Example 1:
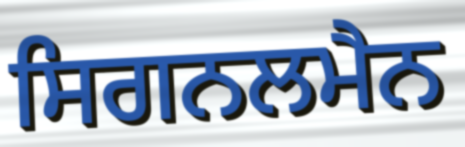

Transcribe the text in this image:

ਸਿਗਨਲਮੈਨ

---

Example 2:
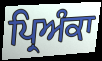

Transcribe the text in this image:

ਪ੍ਰਿਅੰਕਾ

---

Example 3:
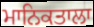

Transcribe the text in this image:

ਮਾਨਿਕਤਾਲਾ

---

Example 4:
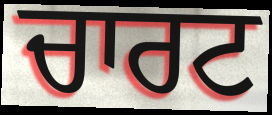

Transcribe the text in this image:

ਚਾਰਟ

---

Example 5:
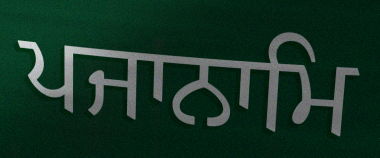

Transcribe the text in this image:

ਪਜਾਨਾਮਿ